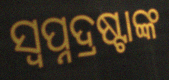
ସ୍ୱପ୍ନଦ୍ରଷ୍ଟାଙ୍କ